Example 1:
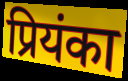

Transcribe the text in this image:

प्रियंका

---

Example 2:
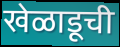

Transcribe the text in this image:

खेळाडूची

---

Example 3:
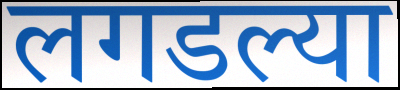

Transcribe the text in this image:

लगडल्या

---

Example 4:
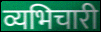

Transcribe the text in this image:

व्यभिचारी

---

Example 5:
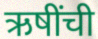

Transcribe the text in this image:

ऋषींची